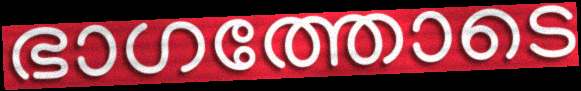
ഭാഗത്തോടെ